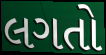
લગતો